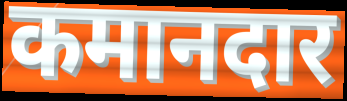
कमानदार